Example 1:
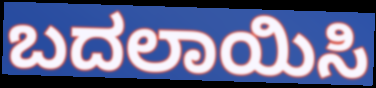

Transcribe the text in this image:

ಬದಲಾಯಿಸಿ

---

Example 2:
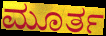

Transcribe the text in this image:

ಮೂರ್ತ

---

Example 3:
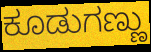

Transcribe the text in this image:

ಕೂಡುಗಣ್ಣು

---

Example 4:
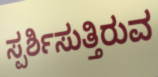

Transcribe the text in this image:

ಸ್ಪರ್ಶಿಸುತ್ತಿರುವ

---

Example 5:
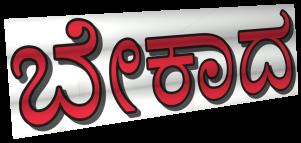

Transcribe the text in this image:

ಬೇಕಾದ